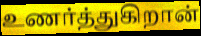
உணர்த்துகிறான்